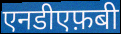
एनडीएफ़बी